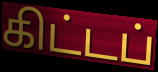
கிட்டப்